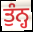
ਤੁੰਨ੍ਹ